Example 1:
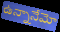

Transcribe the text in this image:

ఉన్నానేమో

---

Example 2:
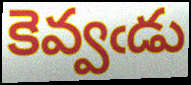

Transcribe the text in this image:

కెవ్వఁడు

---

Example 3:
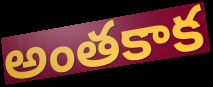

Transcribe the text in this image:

అంతకాక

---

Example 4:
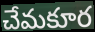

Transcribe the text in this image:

చేమకూర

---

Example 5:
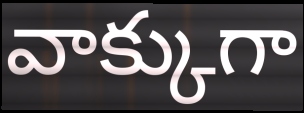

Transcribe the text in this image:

వాక్కుగా